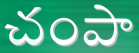
చంపా